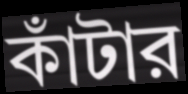
কাঁটার